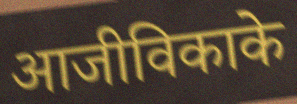
आजीविकाके